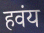
हवंय